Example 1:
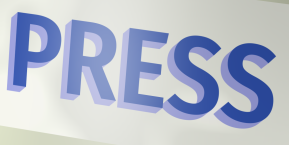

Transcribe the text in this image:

PRESS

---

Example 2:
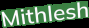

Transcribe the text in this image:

Mithlesh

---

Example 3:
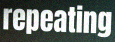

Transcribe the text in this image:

repeating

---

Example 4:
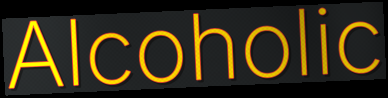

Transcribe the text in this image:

Alcoholic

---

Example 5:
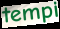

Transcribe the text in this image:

tempi